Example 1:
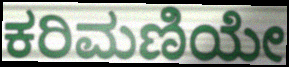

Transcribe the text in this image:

ಕರಿಮಣಿಯೇ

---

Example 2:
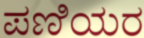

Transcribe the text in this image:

ಪಣಿಯರ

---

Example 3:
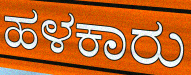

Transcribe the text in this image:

ಹಳಕಾರು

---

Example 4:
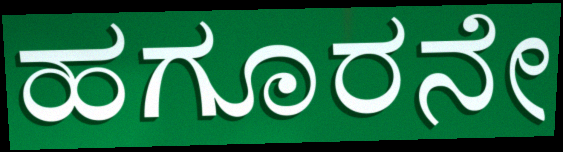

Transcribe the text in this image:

ಹಗೂರನೇ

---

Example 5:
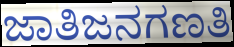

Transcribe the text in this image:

ಜಾತಿಜನಗಣತಿ